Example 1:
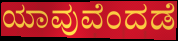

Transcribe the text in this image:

ಯಾವುವೆಂದಡೆ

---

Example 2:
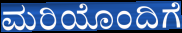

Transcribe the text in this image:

ಮರಿಯೊಂದಿಗೆ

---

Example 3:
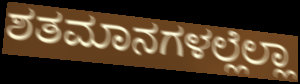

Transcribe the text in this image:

ಶತಮಾನಗಳಲ್ಲೆಲ್ಲಾ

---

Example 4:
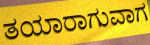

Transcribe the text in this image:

ತಯಾರಾಗುವಾಗ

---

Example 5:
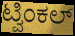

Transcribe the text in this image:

ಟ್ವಿಂಕಲ್